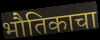
भौतिकाचा